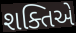
શક્તિએ